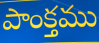
పాంక్తము